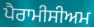
ਪੈਰਾਮੀਸੀਅਮ